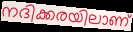
നദിക്കരയിലാണ്